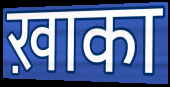
ख़ाका